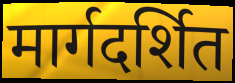
मार्गदर्शित